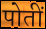
पोतीं